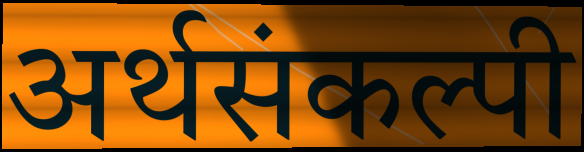
अर्थसंकल्पी